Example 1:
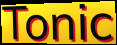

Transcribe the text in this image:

Tonic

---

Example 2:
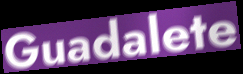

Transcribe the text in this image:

Guadalete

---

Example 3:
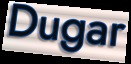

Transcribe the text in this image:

Dugar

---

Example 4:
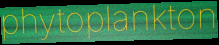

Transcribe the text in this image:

phytoplankton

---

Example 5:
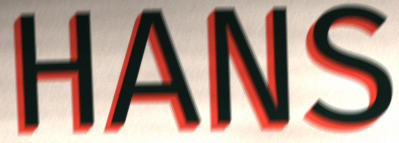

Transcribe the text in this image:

HANS